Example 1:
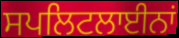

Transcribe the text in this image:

ਸਪਲਿਟਲਾਈਨਾਂ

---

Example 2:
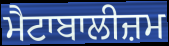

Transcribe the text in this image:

ਮੈਟਾਬਾਲੀਜ਼ਮ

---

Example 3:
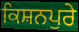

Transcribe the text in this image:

ਕਿਸ਼ਨਪੁਰੇ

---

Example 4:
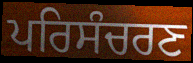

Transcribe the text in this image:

ਪਰਿਸੰਚਰਣ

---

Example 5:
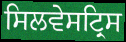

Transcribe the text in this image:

ਸਿਲਵੇਸਟ੍ਰਿਸ